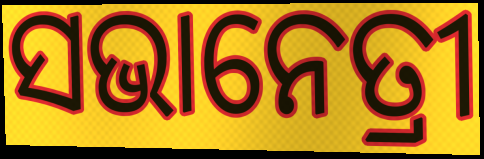
ସଭାନେତ୍ରୀ